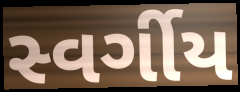
સ્વર્ગીય